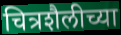
चित्रशैलीच्या